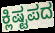
ಕ್ಲಿಷ್ಟಪದ